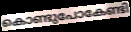
കൊണ്ടുപോകേണ്ടി